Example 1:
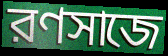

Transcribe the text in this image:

রণসাজে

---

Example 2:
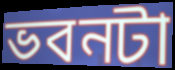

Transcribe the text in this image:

ভবনটা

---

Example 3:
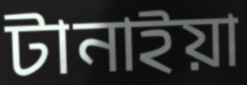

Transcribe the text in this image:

টানাইয়া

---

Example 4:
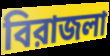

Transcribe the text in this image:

বিরাজলা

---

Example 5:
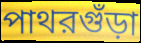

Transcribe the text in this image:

পাথরগুঁড়া